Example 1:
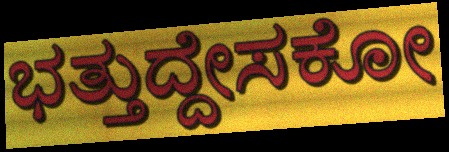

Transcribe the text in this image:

ಭತ್ತುದ್ದೇಸಕೋ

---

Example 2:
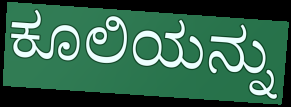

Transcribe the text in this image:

ಕೂಲಿಯನ್ನು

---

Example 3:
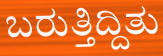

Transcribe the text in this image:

ಬರುತ್ತಿದ್ದಿತು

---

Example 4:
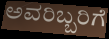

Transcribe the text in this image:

ಅವರಿಬ್ಬರಿಗೆ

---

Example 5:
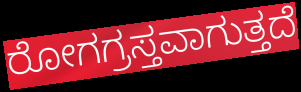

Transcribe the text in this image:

ರೋಗಗ್ರಸ್ತವಾಗುತ್ತದೆ